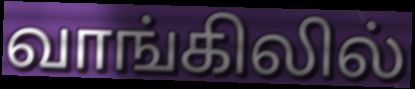
வாங்கிலில்